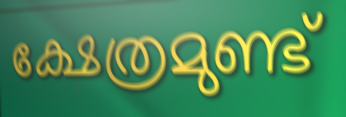
ക്ഷേത്രമുണ്ട്